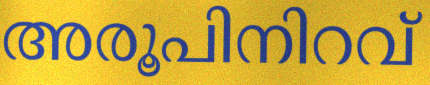
അരൂപിനിറവ്